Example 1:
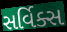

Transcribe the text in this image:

સર્વિક્સ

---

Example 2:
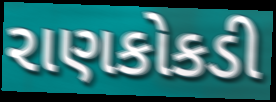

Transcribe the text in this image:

રાણકોકડી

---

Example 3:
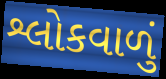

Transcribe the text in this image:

શ્લોકવાળું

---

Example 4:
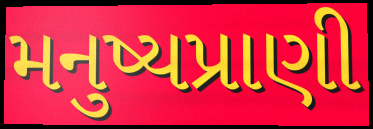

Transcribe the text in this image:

મનુષ્યપ્રાણી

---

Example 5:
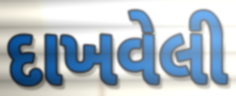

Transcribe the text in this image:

દાખવેલી